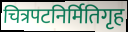
चित्रपटनिर्मितिगृह